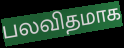
பலவிதமாக